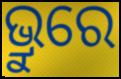
ଭ୍ରୁରେ